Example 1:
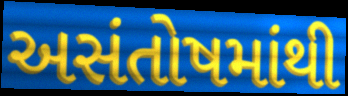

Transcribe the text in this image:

અસંતોષમાંથી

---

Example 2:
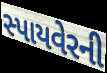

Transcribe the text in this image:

સ્પાયવેરની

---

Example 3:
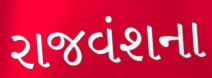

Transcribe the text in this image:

રાજવંશના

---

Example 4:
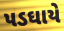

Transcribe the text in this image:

પડઘાયે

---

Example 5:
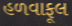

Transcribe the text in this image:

હળવાફૂલ